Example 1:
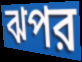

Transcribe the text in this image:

ঝপর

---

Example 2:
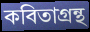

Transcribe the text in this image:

কবিতাগ্রন্থ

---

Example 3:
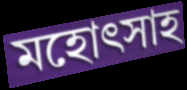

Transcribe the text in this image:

মহোৎসাহ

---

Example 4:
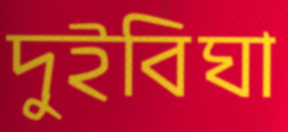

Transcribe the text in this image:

দুইবিঘা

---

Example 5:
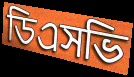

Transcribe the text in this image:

ডিএসভি